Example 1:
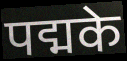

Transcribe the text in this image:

पद्मके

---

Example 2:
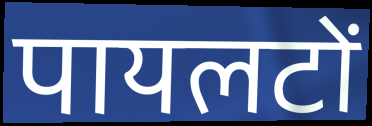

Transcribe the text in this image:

पायलटों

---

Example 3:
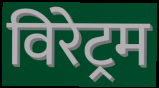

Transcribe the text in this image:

विरेट्रम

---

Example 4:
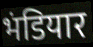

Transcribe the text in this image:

भंडियार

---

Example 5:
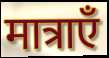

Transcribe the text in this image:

मात्राएँ